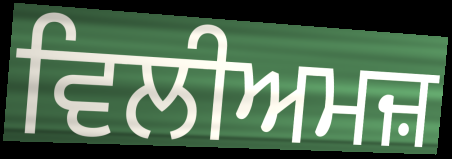
ਵਿਲੀਅਮਜ਼